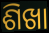
ଶିଖା